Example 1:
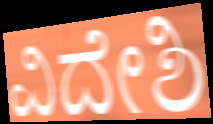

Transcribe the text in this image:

ವಿದೇಶಿ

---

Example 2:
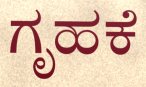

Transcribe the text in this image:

ಗೃಹಕೆ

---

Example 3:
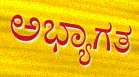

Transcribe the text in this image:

ಅಭ್ಯಾಗತ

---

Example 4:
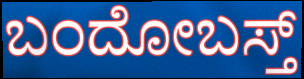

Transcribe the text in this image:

ಬಂದೋಬಸ್ತ್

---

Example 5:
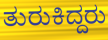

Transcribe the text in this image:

ತುರುಕಿದ್ದರು